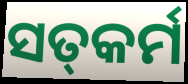
ସତ୍‍କର୍ମ